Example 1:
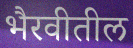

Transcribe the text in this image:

भैरवीतील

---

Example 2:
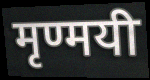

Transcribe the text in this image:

मृण्मयी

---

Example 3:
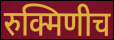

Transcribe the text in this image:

रुक्मिणीच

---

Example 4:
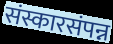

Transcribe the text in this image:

संस्कारसंपन्न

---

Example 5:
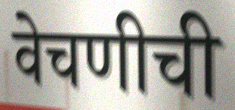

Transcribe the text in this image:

वेचणीची